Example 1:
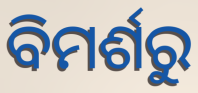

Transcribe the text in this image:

ବିମର୍ଶରୁ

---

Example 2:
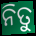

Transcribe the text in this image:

ନିତୁ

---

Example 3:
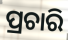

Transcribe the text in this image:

ପ୍ରଚାରି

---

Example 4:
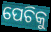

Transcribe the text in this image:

ପେଚିକୁ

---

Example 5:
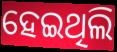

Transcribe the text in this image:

ହେଇଥିଲି